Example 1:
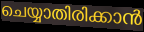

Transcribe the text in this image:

ചെയ്യാതിരിക്കാൻ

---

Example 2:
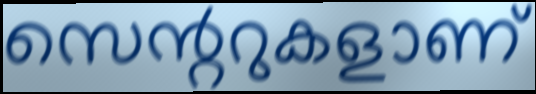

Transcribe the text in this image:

സെന്ററുകളാണ്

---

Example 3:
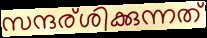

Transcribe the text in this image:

സന്ദര്ശിക്കുന്നത്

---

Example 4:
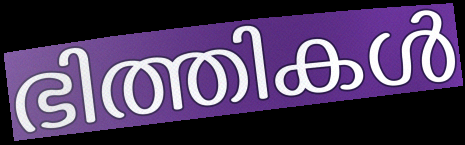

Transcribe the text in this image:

ഭിത്തികൾ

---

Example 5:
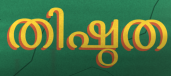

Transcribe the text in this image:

തിഷ്ഠത